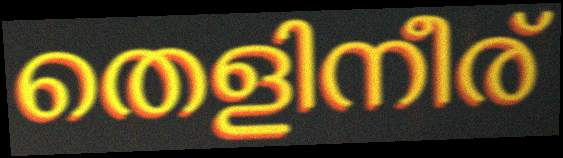
തെളിനീര്